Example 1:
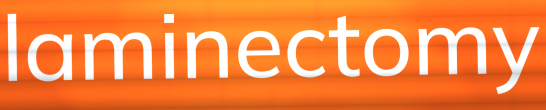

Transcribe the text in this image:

laminectomy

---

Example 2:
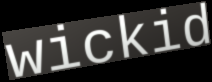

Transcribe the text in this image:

wickid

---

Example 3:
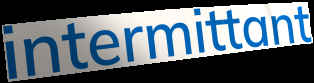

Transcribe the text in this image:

intermittant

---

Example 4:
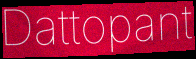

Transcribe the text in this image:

Dattopant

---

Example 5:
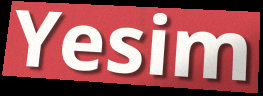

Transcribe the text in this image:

Yesim